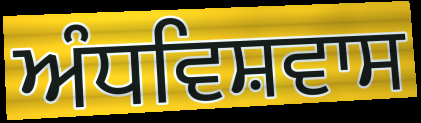
ਅੰਧਵਿਸ਼ਵਾਸ